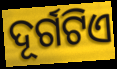
ଦୂର୍ଗଟିଏ